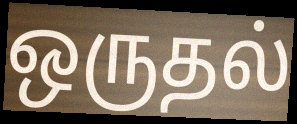
ஒருதல்